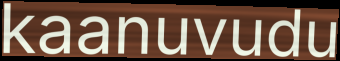
kaanuvudu